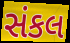
સંકલ